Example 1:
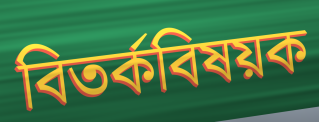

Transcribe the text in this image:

বিতর্কবিষয়ক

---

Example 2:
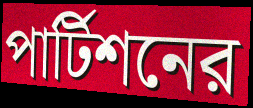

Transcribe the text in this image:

পার্টিশনের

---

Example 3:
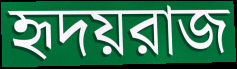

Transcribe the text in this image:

হৃদয়রাজ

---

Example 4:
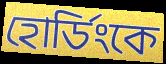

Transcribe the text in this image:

হোর্ডিংকে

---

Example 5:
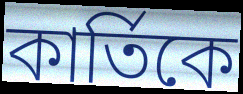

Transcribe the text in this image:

কার্তিকে